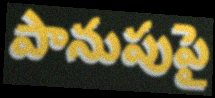
పానుపుపై